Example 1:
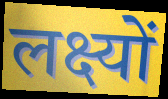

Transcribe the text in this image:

लक्ष्‍यों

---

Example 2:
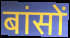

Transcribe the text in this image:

बांसों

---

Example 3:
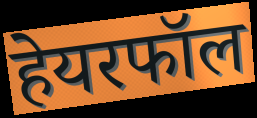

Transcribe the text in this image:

हेयरफॉल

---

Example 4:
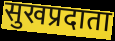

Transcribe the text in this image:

सुखप्रदाता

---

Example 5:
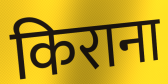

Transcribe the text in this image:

किराना